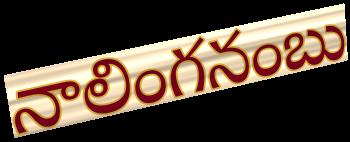
నాలింగనంబు